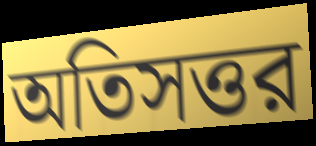
অতিসত্তর